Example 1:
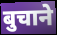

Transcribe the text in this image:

बुचाने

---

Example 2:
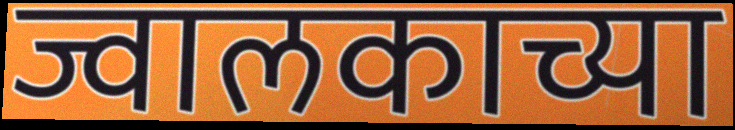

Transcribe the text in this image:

ज्वालकाच्या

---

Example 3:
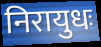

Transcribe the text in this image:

निरायुधः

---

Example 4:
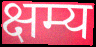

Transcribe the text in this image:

क्षम्य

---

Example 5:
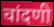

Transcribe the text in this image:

चांदणी